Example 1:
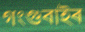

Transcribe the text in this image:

গংগুবাইৰ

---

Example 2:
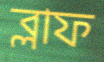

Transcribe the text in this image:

ব্লাফ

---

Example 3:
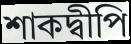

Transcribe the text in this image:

শাকদ্বীপি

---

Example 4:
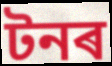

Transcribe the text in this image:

টনৰ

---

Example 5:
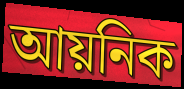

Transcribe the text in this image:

আয়নিক